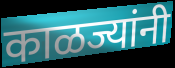
काळज्यांनी